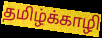
தமிழ்க்காழி